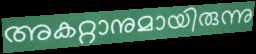
അകറ്റാനുമായിരുന്നു